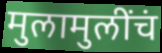
मुलामुलींचं